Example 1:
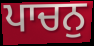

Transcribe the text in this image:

ਪਾਚਨੁ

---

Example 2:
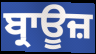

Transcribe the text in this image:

ਬ੍ਰਾਊਜ਼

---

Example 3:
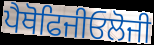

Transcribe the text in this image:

ਪੈਥੋਫਿਜੀਓਲੋਜੀ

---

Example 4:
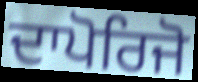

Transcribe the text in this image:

ਦਾਪੋਰਿਜੋ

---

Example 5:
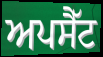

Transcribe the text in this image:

ਅਪਸੈੱਟ